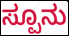
ಸ್ಪೂನು